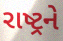
રાષ્ટ્રને